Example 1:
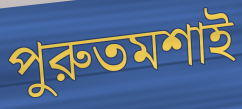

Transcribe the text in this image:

পুরুতমশাই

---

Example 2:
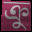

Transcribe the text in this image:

ক্রু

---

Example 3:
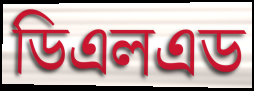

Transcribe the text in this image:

ডিএলএড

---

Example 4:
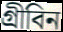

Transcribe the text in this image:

গ্রীবিন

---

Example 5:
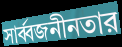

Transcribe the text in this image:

সার্ব্বজনীনতার